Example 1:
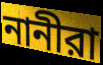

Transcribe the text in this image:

নানীরা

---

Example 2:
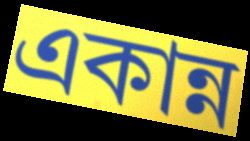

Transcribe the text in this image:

একান্ন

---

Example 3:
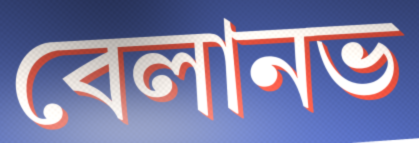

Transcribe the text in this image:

বেলানভ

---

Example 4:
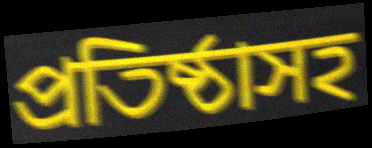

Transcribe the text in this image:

প্রতিষ্ঠাসহ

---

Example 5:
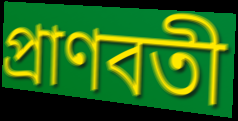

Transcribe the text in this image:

প্রাণবতী